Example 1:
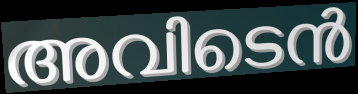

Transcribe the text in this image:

അവിടെൻ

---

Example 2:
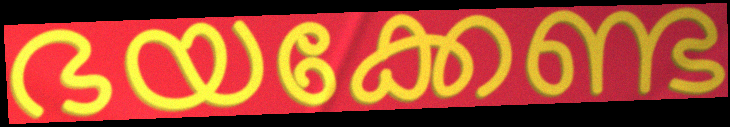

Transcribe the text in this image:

ഭയക്കേണ്ട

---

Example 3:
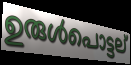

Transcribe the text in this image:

ഉരുൾപൊട്ടല്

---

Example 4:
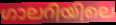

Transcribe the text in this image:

ഗാലറിയിലെ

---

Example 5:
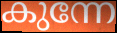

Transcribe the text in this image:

കുന്നേ